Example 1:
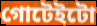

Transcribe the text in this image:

গোটেইটো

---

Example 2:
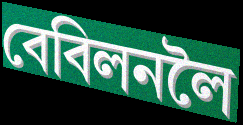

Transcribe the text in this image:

বেবিলনলৈ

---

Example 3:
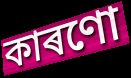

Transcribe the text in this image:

কাৰণো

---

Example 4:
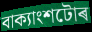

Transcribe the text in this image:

বাক্যাংশটোৰ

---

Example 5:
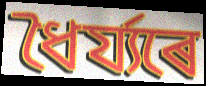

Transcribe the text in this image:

ধৈৰ্য্যৰে